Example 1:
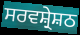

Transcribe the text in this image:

ਸਰਵਸ਼੍ਰੇਸ਼ਠ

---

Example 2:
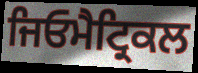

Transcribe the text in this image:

ਜਿਓਮੈਟ੍ਰਿਕਲ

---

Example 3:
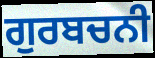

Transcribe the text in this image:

ਗੁਰਬਚਨੀ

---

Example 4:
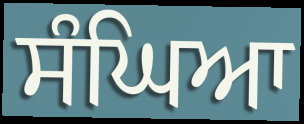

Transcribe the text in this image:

ਸੰਘਿਆ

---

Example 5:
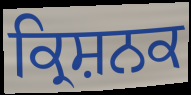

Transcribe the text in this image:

ਕ੍ਰਿਸ਼ਨਕ